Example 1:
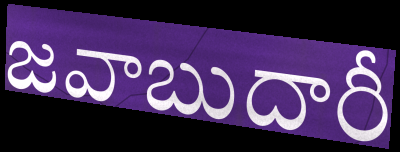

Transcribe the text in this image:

జవాబుదారీ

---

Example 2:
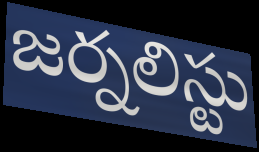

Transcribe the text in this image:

జర్నలిస్టు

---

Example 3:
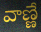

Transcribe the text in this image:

వాణ్ణే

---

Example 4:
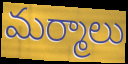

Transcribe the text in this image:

మర్మాలు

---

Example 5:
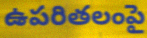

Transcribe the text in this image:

ఉపరితలంపై